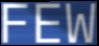
FEW